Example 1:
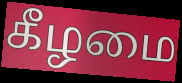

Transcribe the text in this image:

கீழமை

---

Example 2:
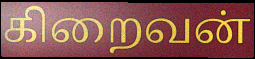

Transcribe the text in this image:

கிறைவன்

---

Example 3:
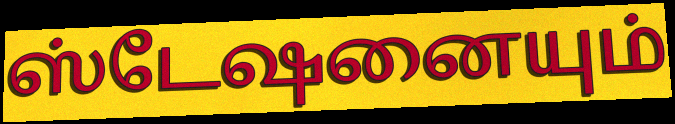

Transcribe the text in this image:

ஸ்டேஷனையும்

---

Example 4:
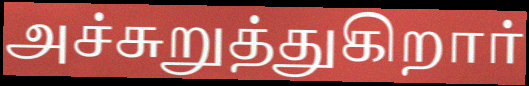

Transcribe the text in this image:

அச்சுறுத்துகிறார்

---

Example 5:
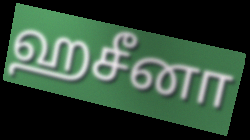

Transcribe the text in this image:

ஹசீனா